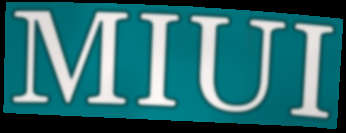
MIUI